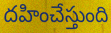
దహించేస్తుంది